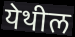
येथील